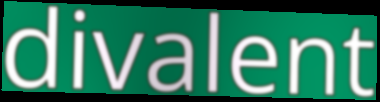
divalent